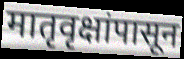
मातृवृक्षांपासून